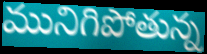
మునిగిపోతున్న